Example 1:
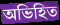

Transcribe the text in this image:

অভিহিত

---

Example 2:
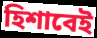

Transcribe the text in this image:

হিশাবেই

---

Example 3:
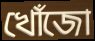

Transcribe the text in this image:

খোঁজো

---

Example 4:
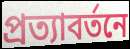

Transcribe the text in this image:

প্রত্যাবর্তনে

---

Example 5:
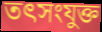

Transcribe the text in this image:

তৎসংযুক্ত